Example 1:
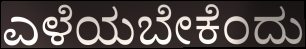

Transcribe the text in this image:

ಎಳೆಯಬೇಕೆಂದು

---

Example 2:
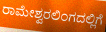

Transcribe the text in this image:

ರಾಮೇಶ್ವರಲಿಂಗದಲ್ಲಿಗೆ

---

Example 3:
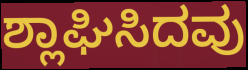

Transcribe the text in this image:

ಶ್ಲಾಘಿಸಿದವು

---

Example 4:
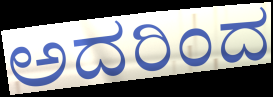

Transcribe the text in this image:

ಅದರಿಂದ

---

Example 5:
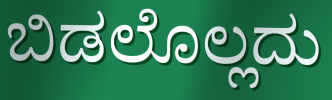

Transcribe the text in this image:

ಬಿಡಲೊಲ್ಲದು